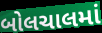
બોલચાલમાં